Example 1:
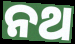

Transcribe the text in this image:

ନଥ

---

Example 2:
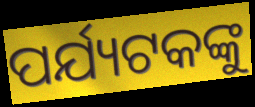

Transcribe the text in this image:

ପର୍ଯ୍ୟଟକଙ୍କୁ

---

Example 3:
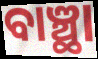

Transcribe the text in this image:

ବାଞ୍ଛା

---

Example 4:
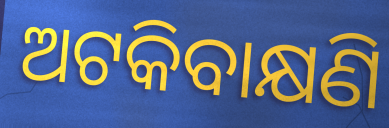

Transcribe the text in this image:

ଅଟକିବାକ୍ଷଣି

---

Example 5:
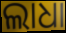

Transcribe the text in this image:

ଲାଧା